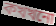
কখখনো